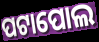
ପଟାପୋଲ